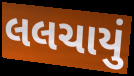
લલચાયું